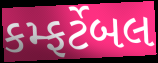
કમ્ફર્ટેબલ